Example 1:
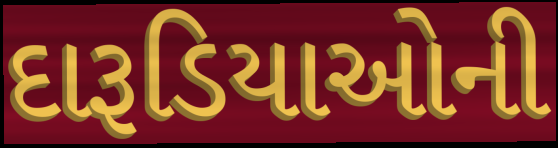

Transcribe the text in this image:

દારૂડિયાઓની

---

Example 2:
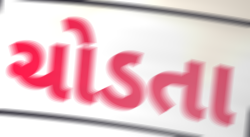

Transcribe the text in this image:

ચોડતા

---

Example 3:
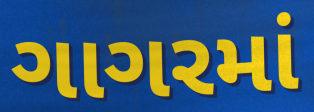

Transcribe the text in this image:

ગાગરમાં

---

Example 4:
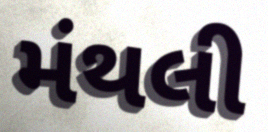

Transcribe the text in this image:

મંથલી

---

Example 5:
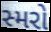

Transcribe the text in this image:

સ્મરો